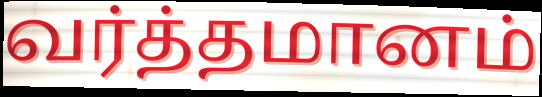
வர்த்தமானம்